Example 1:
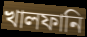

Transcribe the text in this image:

খালফানি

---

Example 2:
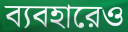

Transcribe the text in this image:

ব্যবহারেও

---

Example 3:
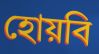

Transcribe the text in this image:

হোয়বি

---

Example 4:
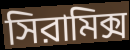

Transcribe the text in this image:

সিরামিক্স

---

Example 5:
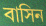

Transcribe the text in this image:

বাসিন